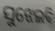
ସୁଝେଇବି